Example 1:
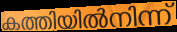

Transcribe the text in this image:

കത്തിയിൽനിന്ന്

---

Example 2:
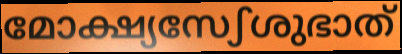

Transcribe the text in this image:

മോക്ഷ്യസേഽശുഭാത്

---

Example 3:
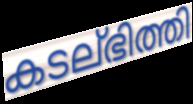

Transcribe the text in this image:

കടല്ഭിത്തി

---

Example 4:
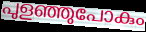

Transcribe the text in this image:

പുളഞ്ഞുപോകും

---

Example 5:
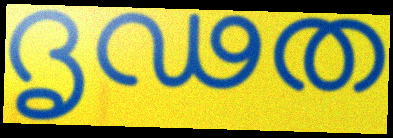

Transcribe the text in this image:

ദൃഢത